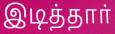
இடித்தார்